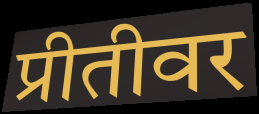
प्रीतीवर